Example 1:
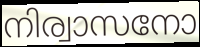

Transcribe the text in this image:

നിര്വാസനോ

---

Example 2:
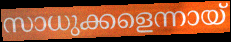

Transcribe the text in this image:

സാധുക്കളെന്നായ്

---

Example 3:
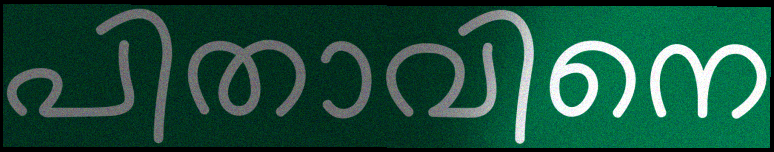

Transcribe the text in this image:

പിതാവിനെ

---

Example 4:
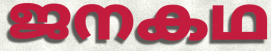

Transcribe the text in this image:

ജനകഥ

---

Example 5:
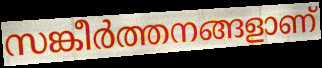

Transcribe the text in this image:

സങ്കീർത്തനങ്ങളാണ്